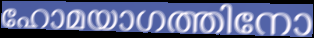
ഹോമയാഗത്തിനോ